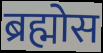
ब्रह्मोस